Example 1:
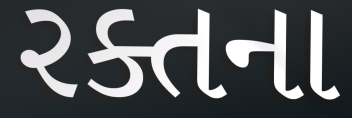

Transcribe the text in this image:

રક્તના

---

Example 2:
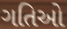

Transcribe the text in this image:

ગતિઓ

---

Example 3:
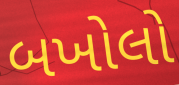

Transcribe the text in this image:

બખોલો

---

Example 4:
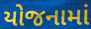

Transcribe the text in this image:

યોજનામાં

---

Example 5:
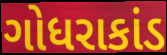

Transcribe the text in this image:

ગોધરાકાંડ